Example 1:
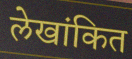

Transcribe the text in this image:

लेखांकित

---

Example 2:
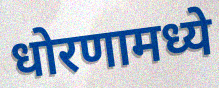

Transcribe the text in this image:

धोरणामध्ये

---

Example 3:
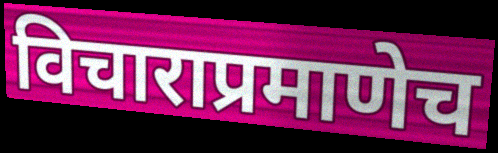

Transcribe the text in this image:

विचाराप्रमाणेच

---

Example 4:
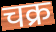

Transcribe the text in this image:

चक्र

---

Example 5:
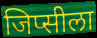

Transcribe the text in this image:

जिप्सीला